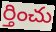
ర్తించు